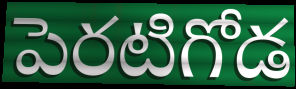
పెరటిగోడ